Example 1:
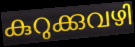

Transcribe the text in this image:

കുറുക്കുവഴി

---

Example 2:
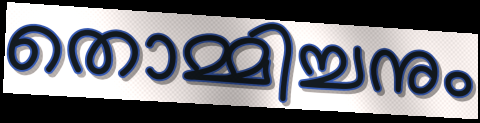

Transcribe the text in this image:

തൊമ്മിച്ചനും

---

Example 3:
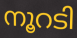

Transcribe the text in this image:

നൂറടി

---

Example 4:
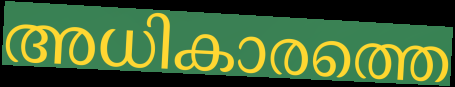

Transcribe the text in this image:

അധികാരത്തെ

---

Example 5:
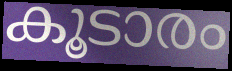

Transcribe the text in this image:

കൂടാരം